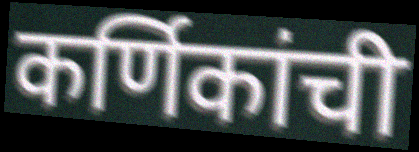
कर्णिकांची